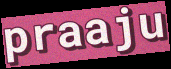
praaju